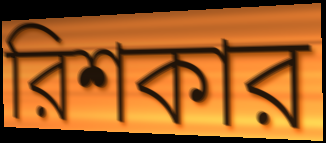
রিশকার